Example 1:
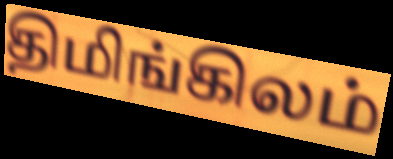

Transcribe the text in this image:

திமிங்கிலம்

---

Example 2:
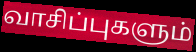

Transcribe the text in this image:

வாசிப்புகளும்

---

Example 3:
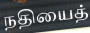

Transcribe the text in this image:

நதியைத்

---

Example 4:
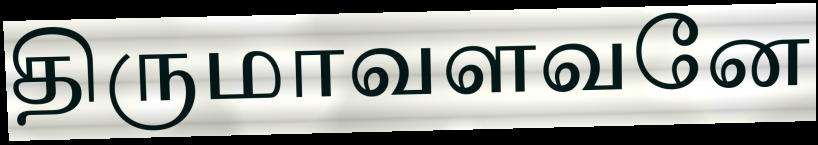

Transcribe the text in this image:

திருமாவளவனே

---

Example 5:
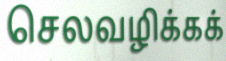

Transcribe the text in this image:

செலவழிக்கக்